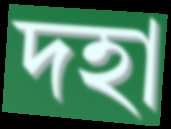
দহা